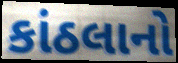
કાંઠલાનો